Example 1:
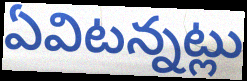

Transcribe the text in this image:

ఏవిటన్నట్లు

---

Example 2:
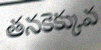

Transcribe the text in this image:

తనకెక్కువ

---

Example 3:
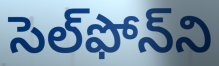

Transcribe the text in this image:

సెల్‌ఫోన్‌ని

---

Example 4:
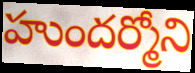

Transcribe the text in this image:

హుందర్మోని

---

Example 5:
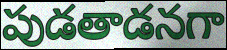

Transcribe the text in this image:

పుడతాడనగా